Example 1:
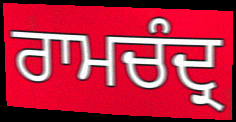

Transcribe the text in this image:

ਰਾਮਚੰਦ੍ਰ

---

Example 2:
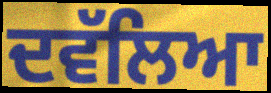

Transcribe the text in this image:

ਦਵੱਲਿਆ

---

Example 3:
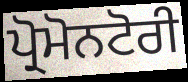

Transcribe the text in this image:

ਪ੍ਰੋਮੋਨਟੋਰੀ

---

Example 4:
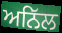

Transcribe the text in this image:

ਅਨਿੱਲ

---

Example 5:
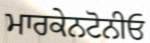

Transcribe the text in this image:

ਮਾਰਕੇਨਟੋਨੀਓ